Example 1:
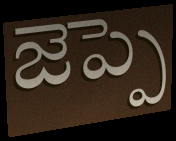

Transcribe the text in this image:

జెప్పె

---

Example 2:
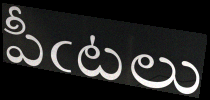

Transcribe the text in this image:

పీఁటలు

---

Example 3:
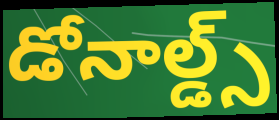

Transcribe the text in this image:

డోనాల్డ్స్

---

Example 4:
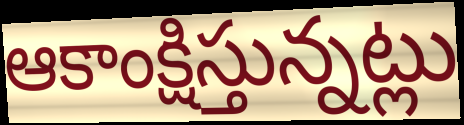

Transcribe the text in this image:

ఆకాంక్షిస్తున్నట్లు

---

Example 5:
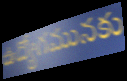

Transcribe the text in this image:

ఉద్యోగమునకు